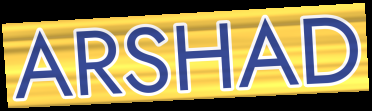
ARSHAD